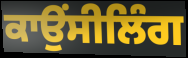
ਕਾਉਂਸੀਲਿੰਗ